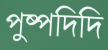
পুষ্পদিদি